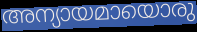
അന്യായമായൊരു